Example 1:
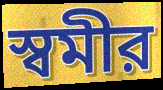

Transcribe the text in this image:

স্বমীর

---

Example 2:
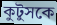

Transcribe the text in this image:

কুটুসকে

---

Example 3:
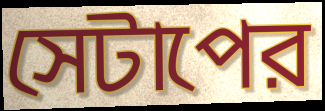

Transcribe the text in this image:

সেটাপের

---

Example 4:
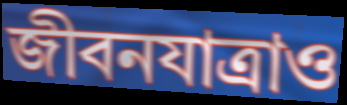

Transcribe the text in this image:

জীবনযাত্রাও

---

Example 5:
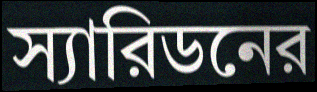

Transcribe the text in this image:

স্যারিডনের